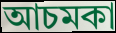
আচমকা